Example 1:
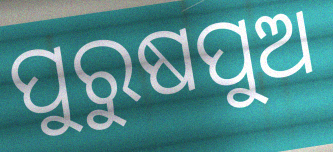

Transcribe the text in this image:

ପୁରୁଷପୁଅ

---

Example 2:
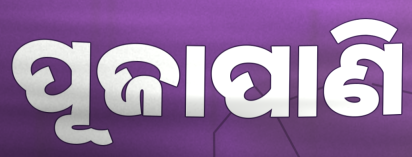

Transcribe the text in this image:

ପୂଜାପାଣି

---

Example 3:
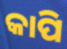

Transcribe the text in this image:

କାପି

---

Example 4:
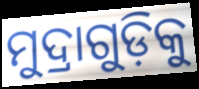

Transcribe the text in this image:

ମୁଦ୍ରାଗୁଡ଼ିକୁ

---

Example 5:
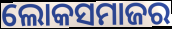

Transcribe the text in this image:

ଲୋକସମାଜର